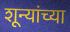
शून्यांच्या